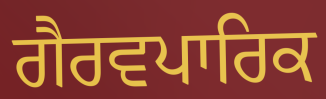
ਗੈਰਵਪਾਰਿਕ